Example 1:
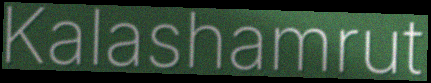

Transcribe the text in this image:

Kalashamrut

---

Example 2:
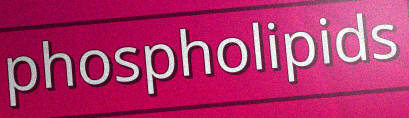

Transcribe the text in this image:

phospholipids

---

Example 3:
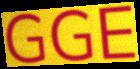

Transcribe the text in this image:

GGE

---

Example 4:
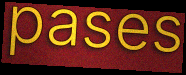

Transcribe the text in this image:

pases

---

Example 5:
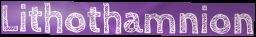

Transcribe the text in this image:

Lithothamnion